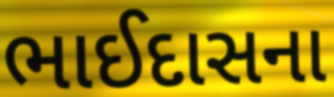
ભાઈદાસના